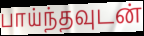
பாய்ந்தவுடன்